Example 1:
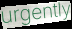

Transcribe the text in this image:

urgently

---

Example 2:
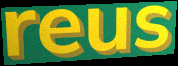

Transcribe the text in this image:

reus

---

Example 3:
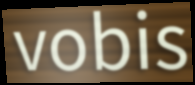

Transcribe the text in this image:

vobis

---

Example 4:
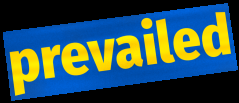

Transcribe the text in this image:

prevailed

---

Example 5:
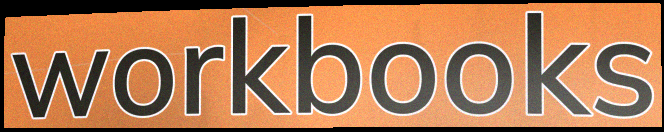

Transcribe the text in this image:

workbooks